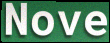
Nove